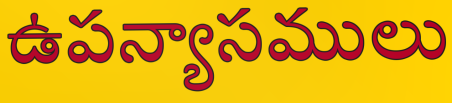
ఉపన్యాసములు